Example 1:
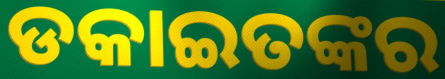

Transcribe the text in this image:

ଡକାଇତଙ୍କର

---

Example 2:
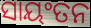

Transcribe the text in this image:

ସାୟଂତନ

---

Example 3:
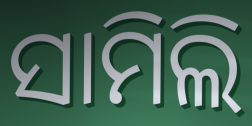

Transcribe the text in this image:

ସାମିଲି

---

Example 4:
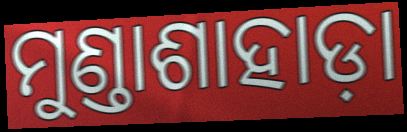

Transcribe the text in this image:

ମୁଣ୍ଡାଶାହାଡ଼ା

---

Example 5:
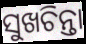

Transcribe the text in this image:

ସୁଖଚିନ୍ତା